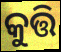
କୁତ୍ତି